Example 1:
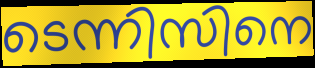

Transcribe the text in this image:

ടെന്നിസിനെ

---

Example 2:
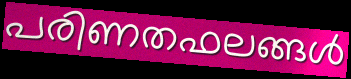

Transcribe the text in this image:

പരിണതഫലങ്ങൾ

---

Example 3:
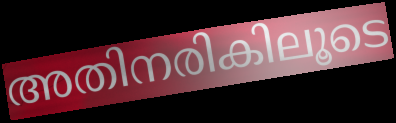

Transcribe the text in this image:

അതിനരികിലൂടെ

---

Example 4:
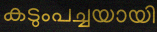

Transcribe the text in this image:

കടുംപച്ചയായി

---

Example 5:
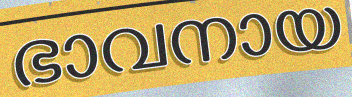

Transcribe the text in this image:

ഭാവനായ